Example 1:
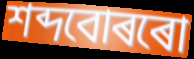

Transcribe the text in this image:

শব্দবোৰৰো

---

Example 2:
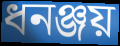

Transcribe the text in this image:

ধনঞ্জয়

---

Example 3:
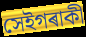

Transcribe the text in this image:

সেইগৰাকী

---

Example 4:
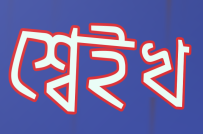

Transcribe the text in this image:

শ্বেইখ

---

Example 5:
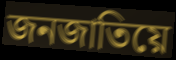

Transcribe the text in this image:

জনজাতিয়ে